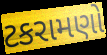
ટકરામણો